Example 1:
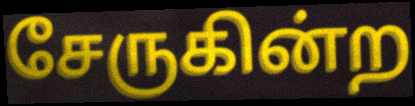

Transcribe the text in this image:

சேருகின்ற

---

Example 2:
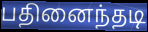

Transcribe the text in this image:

பதினைந்தடி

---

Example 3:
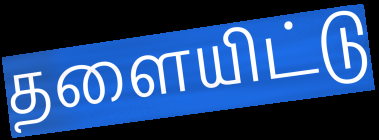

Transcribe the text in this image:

தளையிட்டு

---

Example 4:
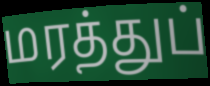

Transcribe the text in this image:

மரத்துப்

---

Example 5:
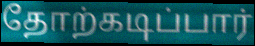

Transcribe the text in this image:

தோற்கடிப்பார்